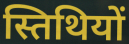
स्तिथियों